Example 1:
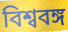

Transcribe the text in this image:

বিশ্ববঙ্গ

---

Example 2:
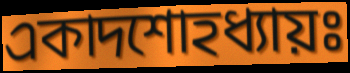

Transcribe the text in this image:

একাদশোহধ্যায়ঃ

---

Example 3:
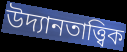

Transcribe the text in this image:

উদ্যানতাত্ত্বিক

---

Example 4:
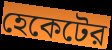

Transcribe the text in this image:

হেকেটের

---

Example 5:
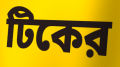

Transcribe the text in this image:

টিকের